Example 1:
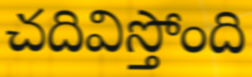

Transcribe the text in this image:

చదివిస్తోంది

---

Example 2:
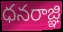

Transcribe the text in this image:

ధనరాజ్ఞి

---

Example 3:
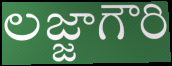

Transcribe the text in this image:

లజ్జాగౌరి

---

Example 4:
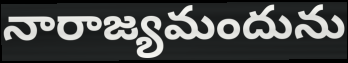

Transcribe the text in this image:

నారాజ్యమందును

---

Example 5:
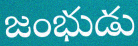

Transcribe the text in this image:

జంభుడు